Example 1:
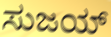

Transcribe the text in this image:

ಸುಜಯ್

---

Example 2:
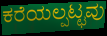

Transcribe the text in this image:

ಕರೆಯಲ್ಪಟ್ಟವು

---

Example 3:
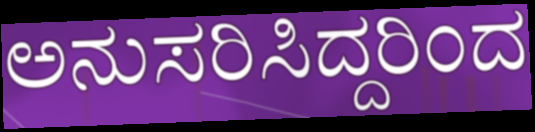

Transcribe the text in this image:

ಅನುಸರಿಸಿದ್ದರಿಂದ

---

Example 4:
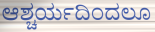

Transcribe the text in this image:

ಆಶ್ಚರ್ಯದಿಂದಲೂ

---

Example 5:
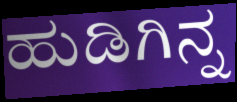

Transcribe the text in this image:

ಹುಡಿಗಿನ್ನ